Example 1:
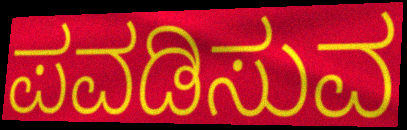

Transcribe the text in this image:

ಪವಡಿಸುವ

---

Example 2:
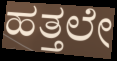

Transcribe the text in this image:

ಹತ್ತಲೇ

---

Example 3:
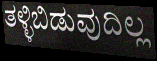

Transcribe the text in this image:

ತಳ್ಳಿಬಿಡುವುದಿಲ್ಲ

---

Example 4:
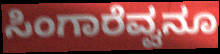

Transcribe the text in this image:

ಸಿಂಗಾರೆವ್ವನೂ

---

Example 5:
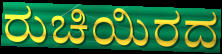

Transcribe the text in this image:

ರುಚಿಯಿರದ